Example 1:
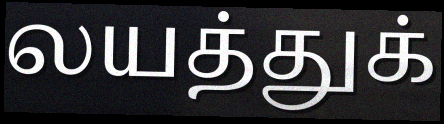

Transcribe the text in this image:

லயத்துக்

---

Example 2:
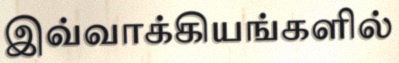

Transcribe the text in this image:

இவ்வாக்கியங்களில்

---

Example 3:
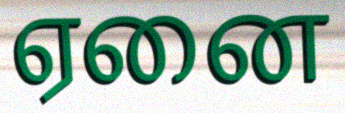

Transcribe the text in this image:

ஏனை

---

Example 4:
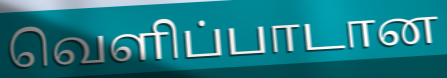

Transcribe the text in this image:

வெளிப்பாடான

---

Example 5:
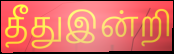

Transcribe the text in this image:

தீதுஇன்றி